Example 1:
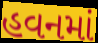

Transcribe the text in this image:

હવનમાં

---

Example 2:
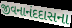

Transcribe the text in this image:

જીવનાનંદદાસના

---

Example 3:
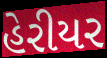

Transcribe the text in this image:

હેરીયર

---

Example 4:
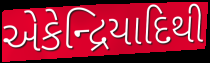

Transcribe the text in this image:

એકેન્દ્રિયાદિથી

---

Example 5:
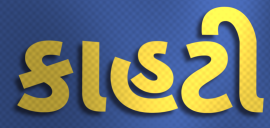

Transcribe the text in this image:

કાહટી